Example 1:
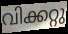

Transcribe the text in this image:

വിക്കറ്റു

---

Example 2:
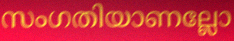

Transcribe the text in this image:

സംഗതിയാണല്ലോ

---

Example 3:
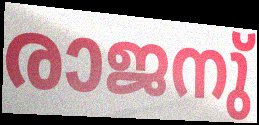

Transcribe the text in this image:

രാജനു്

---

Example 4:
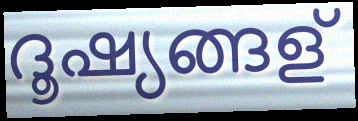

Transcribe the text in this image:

ദൂഷ്യങ്ങള്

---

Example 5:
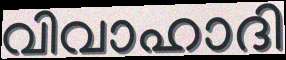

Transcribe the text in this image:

വിവാഹാദി